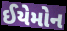
ઈયેમોન